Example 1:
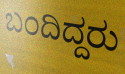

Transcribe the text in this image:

ಬಂದಿದ್ದರು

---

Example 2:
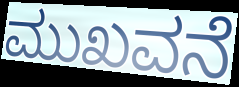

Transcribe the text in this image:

ಮುಖವನೆ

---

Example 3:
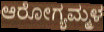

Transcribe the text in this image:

ಆರೋಗ್ಯಮ್ಮಳ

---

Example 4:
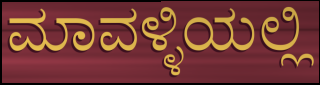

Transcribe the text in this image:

ಮಾವಳ್ಳಿಯಲ್ಲಿ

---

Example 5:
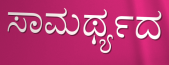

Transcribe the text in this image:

ಸಾಮರ್ಥ್ಯದ